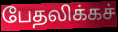
பேதலிக்கச்